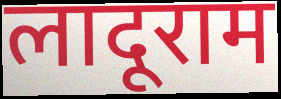
लादूराम